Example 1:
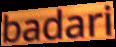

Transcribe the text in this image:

badari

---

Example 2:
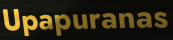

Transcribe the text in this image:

Upapuranas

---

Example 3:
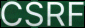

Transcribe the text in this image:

CSRF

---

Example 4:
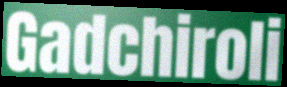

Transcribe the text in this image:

Gadchiroli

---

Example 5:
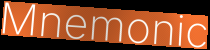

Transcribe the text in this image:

Mnemonic